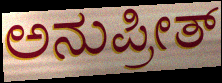
ಅನುಪ್ರೀತ್